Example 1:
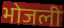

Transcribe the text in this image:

भोजली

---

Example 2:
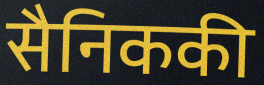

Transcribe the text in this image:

सैनिककी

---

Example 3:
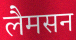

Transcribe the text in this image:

लैमसन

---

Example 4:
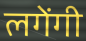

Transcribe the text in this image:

लगेंगी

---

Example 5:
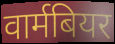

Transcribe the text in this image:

वार्मबियर